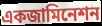
একজামিনেশন